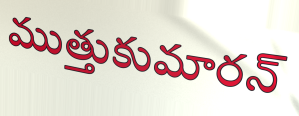
ముత్తుకుమారన్